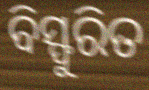
ବିସ୍ଫୁରିତ